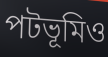
পটভূমিও